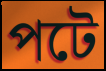
পটে